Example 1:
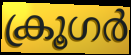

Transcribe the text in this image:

ക്രൂഗർ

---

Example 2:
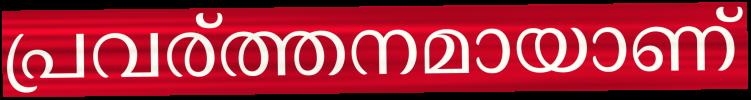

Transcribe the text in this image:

പ്രവര്ത്തനമായാണ്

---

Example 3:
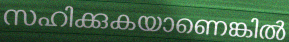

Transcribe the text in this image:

സഹിക്കുകയാണെങ്കിൽ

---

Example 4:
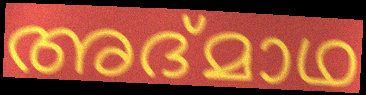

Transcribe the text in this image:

അദ്മാഥ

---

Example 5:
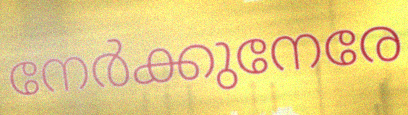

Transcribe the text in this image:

നേർക്കുനേരേ